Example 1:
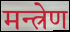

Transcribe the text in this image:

मन्त्रेण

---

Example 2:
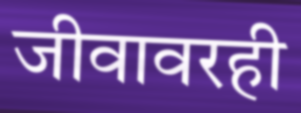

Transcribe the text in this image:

जीवावरही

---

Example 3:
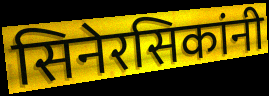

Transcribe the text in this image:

सिनेरसिकांनी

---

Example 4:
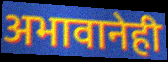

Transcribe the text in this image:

अभावानेही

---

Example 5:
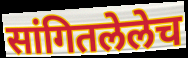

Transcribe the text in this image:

सांगितलेलेच